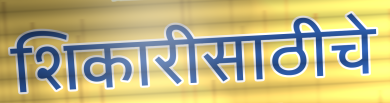
शिकारीसाठीचे